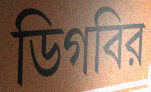
ডিগবির